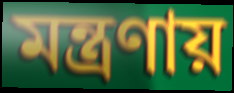
মন্ত্রণায়